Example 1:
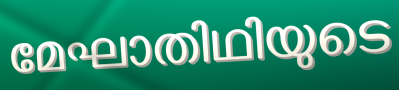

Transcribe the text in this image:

മേഘാതിഥിയുടെ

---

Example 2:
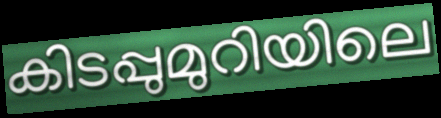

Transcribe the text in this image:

കിടപ്പുമുറിയിലെ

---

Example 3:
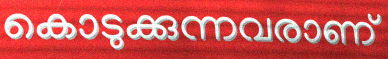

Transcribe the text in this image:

കൊടുക്കുന്നവരാണ്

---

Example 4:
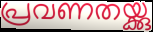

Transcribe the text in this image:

പ്രവണതയ്ക്കു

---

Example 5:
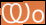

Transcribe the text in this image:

യം